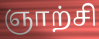
ஞாற்சி